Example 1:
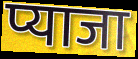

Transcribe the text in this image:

प्याजा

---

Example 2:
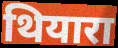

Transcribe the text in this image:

थियारा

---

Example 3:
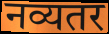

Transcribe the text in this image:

नव्यतर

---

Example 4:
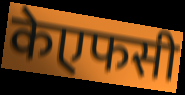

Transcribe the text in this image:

केएफसी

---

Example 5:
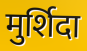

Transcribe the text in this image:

मुर्शिदा